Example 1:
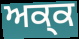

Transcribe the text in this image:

ਅਕ੍ਕ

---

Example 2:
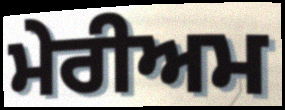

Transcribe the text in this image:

ਮੇਰੀਅਮ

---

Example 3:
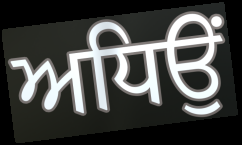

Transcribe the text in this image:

ਅਧਿਉਂ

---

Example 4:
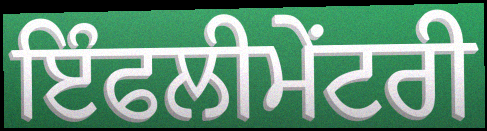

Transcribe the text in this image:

ਇੰਫਲੀਮੇਂਟਰੀ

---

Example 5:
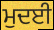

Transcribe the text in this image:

ਮੁਦਈ